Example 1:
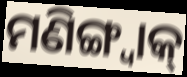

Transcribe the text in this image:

ମଣିଙ୍ଗ୍ୱାକ୍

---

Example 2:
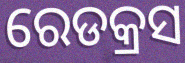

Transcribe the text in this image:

ରେଡକ୍ରସ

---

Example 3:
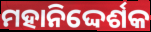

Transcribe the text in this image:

ମହାନିଦ୍ଦେର୍ଶକ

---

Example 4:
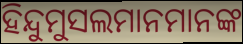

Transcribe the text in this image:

ହିନ୍ଦୁମୁସଲମାନମାନଙ୍କ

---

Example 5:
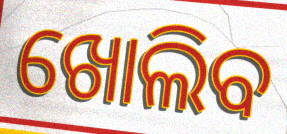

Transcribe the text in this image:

ଖୋଲିବ